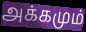
அக்கமும்